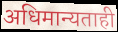
अधिमान्यताही